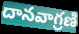
దానవాగ్రణి